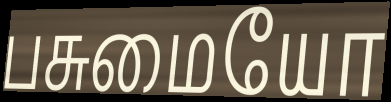
பசுமையோ